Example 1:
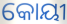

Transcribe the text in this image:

କୋୟୀ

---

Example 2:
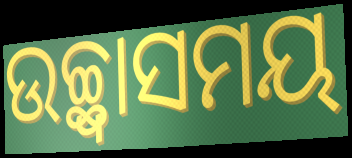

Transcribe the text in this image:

ଉଚ୍ଛ୍ଵାସମୟ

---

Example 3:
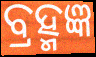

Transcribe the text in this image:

ବ୍ରହ୍ମଜ୍ଞ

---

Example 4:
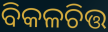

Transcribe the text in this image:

ବିକଳଚିତ୍ତ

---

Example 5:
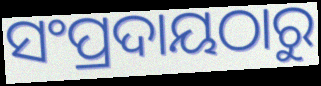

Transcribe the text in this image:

ସଂପ୍ରଦାୟଠାରୁ